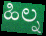
ಹಿಲ್ನ